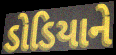
ડોડિયાને